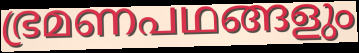
ഭ്രമണപഥങ്ങളും